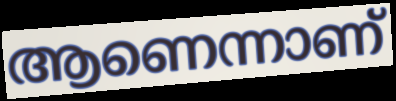
ആണെന്നാണ്